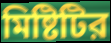
মিষ্টিটির